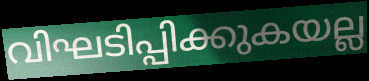
വിഘടിപ്പിക്കുകയല്ല